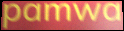
pamwa